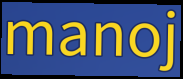
manoj